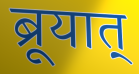
ब्रूयात्